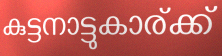
കുട്ടനാട്ടുകാര്ക്ക്